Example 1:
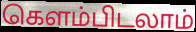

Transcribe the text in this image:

கெளம்பிடலாம்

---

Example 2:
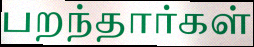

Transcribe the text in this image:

பறந்தார்கள்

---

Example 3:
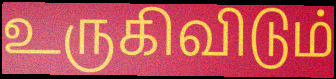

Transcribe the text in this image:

உருகிவிடும்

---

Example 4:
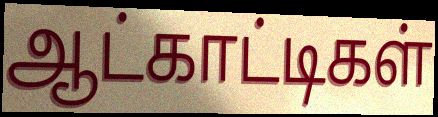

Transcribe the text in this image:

ஆட்காட்டிகள்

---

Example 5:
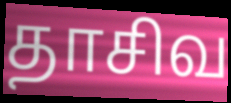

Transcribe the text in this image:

தாசிவ